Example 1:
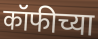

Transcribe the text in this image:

कॉफीच्या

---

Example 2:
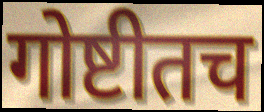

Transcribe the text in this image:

गोष्टीतच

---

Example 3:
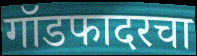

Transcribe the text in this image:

गॉडफादरचा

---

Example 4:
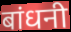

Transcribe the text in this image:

बांधनी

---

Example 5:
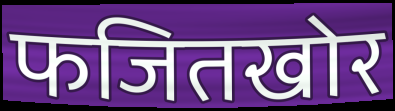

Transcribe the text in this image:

फजितखोर